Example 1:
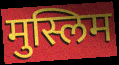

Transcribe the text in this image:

मुस्लिम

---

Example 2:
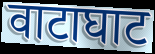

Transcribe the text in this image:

वाटाघाट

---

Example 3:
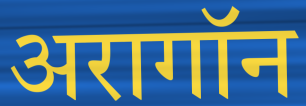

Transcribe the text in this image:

अरागॉन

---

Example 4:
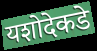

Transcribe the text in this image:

यशोदेकडे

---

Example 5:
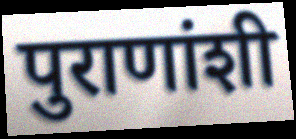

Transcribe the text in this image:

पुराणांशी